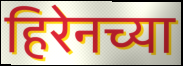
हिरेनच्या